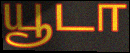
யூடா